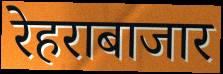
रेहराबाजार